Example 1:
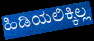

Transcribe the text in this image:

ಹಿಡಿಯಲಿಕ್ಕಿಲ್ಲ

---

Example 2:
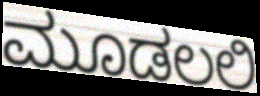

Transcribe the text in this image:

ಮೂಡಲಲಿ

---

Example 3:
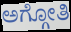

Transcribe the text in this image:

ಅಗ್ಗೋತಿ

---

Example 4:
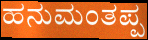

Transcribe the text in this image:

ಹನುಮಂತಪ್ಪ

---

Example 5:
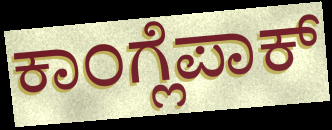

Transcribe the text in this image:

ಕಾಂಗ್ಲೆಪಾಕ್